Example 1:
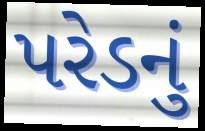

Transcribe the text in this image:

પરેડનું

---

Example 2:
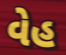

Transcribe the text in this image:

વેહ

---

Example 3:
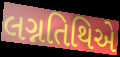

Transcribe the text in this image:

લગ્નતિથિએ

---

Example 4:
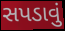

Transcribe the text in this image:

સપડાવું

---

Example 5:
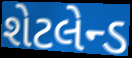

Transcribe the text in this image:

શેટલેન્ડ